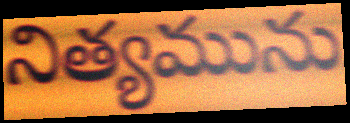
నిత్యమును